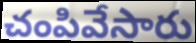
చంపివేసారు